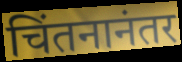
चिंतनानंतर